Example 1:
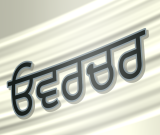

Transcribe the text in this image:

ਓਵਰਚਰ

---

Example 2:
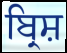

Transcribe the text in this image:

ਬ੍ਰਿਸ਼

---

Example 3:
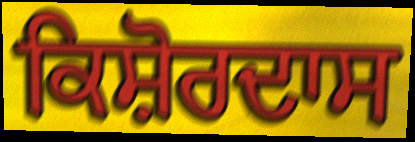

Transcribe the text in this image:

ਕਿਸ਼ੋਰਦਾਸ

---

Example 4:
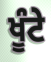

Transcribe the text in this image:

ਖੂੰਟੇ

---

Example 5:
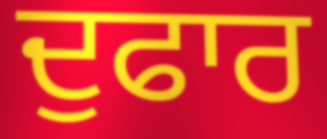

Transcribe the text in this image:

ਦੁਫਾਰ